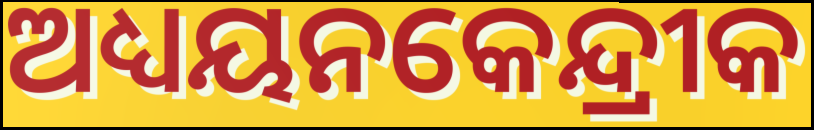
ଅଧ୍ୟୟନକେନ୍ଦ୍ରୀକ